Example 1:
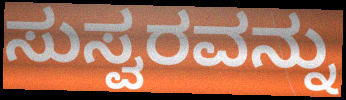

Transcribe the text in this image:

ಸುಸ್ವರವನ್ನು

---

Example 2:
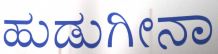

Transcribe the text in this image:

ಹುಡುಗೀನಾ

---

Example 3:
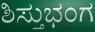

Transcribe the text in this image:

ಶಿಸ್ತುಭಂಗ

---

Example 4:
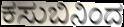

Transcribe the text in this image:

ಕಸುಬಿನಿಂದ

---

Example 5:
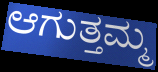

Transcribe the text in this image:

ಆಗುತ್ತಮ್ಮ